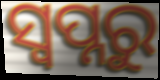
ସ୍ବପ୍ନରୁ